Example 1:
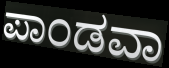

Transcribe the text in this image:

ಪಾಂಡವಾ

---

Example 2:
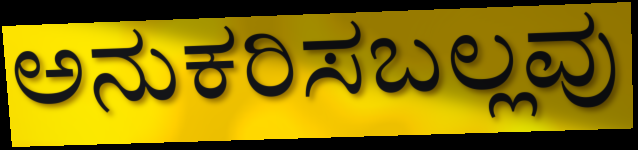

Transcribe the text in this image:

ಅನುಕರಿಸಬಲ್ಲವು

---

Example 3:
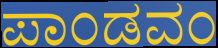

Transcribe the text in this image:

ಪಾಂಡವಂ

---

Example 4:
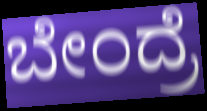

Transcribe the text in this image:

ಬೇಂದ್ರೆ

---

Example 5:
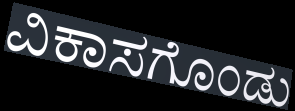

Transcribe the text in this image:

ವಿಕಾಸಗೊಂಡು